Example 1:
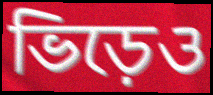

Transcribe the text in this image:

ভিড়েও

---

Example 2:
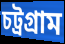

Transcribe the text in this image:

চট্রগ্রাম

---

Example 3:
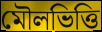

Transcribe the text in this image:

মৌলভিত্তি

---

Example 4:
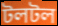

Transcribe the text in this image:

টলটল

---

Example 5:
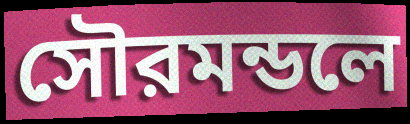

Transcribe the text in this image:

সৌরমন্ডলে